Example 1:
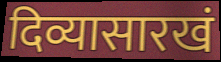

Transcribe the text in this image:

दिव्यासारखं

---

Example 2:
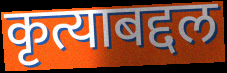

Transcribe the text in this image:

कृत्याबद्दल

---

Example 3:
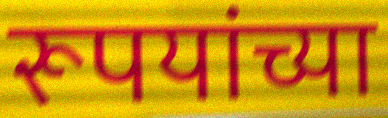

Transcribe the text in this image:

रूपयांच्या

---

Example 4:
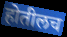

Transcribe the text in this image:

होतीलच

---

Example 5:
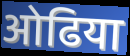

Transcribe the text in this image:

ओढिया